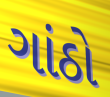
ગાંઠો